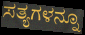
ಸತ್ಯಗಳನ್ನೂ